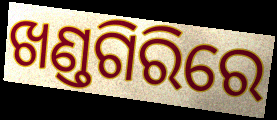
ଖଣ୍ଡଗିରିରେ